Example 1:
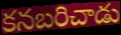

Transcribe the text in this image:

కనబరిచాడు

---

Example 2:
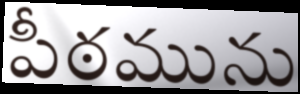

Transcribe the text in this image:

పీఠమును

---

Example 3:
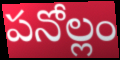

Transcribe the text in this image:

పనోల్లం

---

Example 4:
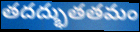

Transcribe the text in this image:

తదద్భుతతమం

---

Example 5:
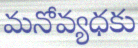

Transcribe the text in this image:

మనోవ్యధకు